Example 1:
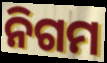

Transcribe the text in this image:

ନିଗମ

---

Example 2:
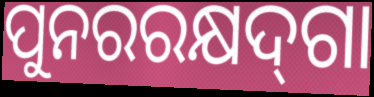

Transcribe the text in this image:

ପୁନରରକ୍ଷଦ୍‌ଗା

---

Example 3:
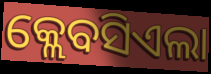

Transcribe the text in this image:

କ୍ଲେବସିଏଲା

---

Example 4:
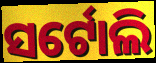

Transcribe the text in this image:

ସର୍ଟୋଲି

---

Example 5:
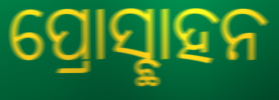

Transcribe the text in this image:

ପ୍ରୋସ୍ଛାହନ